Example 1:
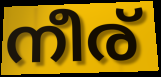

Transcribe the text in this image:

നീര്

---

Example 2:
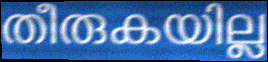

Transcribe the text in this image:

തീരുകയില്ല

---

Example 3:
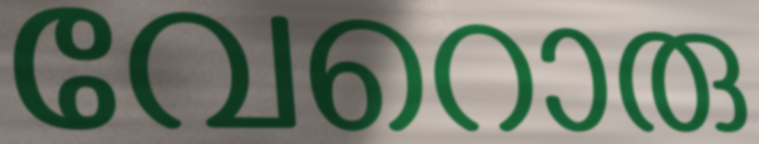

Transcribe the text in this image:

വേറൊരു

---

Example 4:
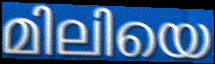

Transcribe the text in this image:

മിലിയെ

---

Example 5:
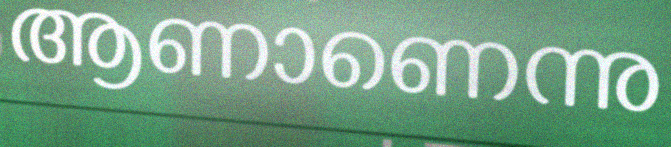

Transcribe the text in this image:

ആണാണെന്നു